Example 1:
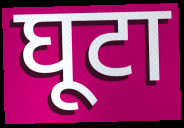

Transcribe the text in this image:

घूटा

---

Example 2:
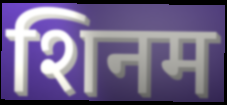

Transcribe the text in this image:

शिनम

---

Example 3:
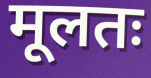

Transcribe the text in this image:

मूलतः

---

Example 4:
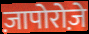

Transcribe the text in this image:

ज़ापोरोज़े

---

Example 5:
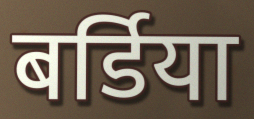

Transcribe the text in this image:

बर्डिया